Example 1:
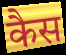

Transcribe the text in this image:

कैस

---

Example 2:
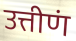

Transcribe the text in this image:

उत्तीणं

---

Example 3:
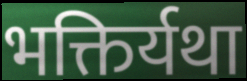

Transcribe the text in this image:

भक्तिर्यथा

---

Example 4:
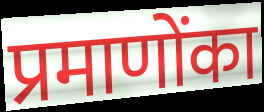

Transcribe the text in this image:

प्रमाणोंका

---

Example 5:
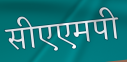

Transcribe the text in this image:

सीएएमपी